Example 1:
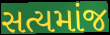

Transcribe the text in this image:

સત્યમાંજ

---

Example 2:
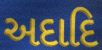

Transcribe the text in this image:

અદાદિ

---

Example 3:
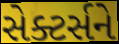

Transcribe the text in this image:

સેક્ટર્સને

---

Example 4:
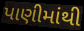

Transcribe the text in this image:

પાણીમાંથી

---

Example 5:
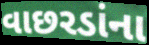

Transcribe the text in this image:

વાછરડાંના